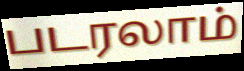
படரலாம்